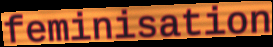
feminisation